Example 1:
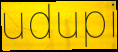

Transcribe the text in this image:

udupi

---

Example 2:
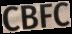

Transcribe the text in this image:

CBFC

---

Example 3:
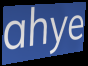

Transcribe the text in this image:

ahye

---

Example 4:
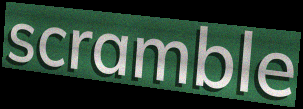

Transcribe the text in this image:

scramble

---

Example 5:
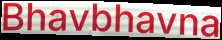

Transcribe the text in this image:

Bhavbhavna